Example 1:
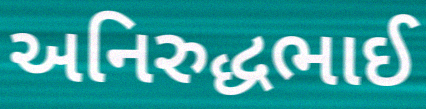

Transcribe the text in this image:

અનિરુદ્ધભાઈ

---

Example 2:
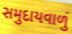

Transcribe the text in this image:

સમુદાયવાળું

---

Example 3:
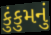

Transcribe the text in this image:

કુંકુમનું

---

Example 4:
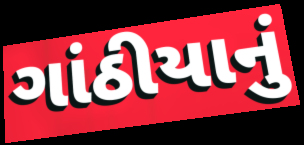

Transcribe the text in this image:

ગાંઠીયાનું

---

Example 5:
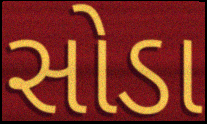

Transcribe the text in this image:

સોડા